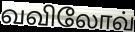
வவிலோவ்